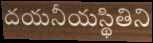
దయనీయస్థితిని